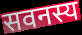
सवनस्य